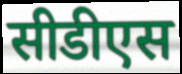
सीडीएस